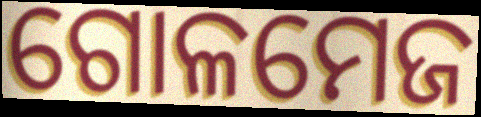
ଗୋଳମେଜ